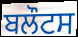
ਬਲੌਟਸ